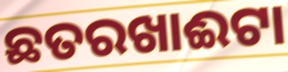
ଛତରଖାଈଟା